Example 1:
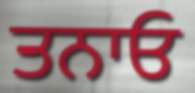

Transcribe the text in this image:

ਤਨਾਓ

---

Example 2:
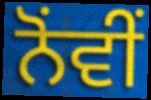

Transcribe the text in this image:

ਨੋਂਵੀਂ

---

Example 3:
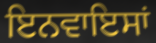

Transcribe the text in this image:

ਇਨਵਾਇਸਾਂ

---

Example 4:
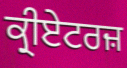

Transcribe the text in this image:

ਕ੍ਰੀਏਟਰਜ਼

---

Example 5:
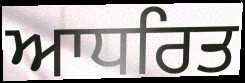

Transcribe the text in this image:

ਆਧਰਿਤ